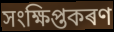
সংক্ষিপ্তকৰণ